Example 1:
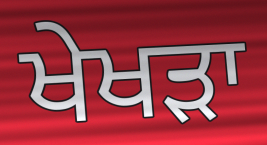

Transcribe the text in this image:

ਖੇਖੜਾ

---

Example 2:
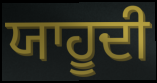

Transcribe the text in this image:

ਯਾਹੂਦੀ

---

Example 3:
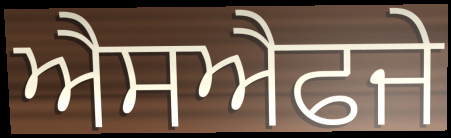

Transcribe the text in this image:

ਐਸਐਫਜੇ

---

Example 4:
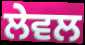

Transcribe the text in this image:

ਲੇਵਲ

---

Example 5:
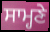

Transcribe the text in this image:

ਸਾਮ੍ਹਣੇ